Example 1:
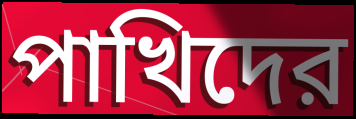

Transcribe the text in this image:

পাখিদের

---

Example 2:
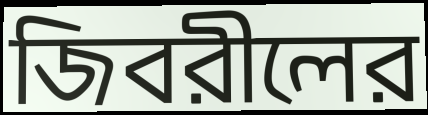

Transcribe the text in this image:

জিবরীলের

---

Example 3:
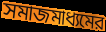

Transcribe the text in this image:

সমাজমাধ্যমের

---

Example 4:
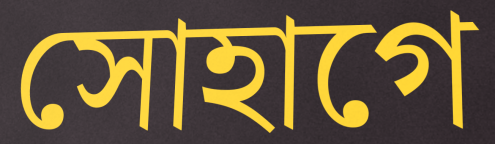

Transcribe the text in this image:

সোহাগে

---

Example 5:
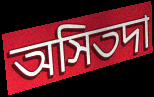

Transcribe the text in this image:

অসিতদা